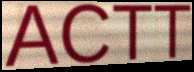
ACTT